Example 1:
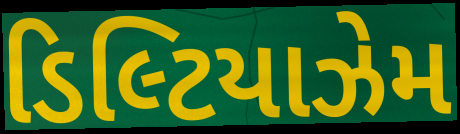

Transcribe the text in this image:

ડિલ્ટિયાઝેમ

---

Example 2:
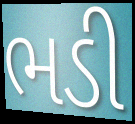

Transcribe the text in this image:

ભડી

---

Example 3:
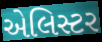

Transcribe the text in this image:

એલિસ્ટર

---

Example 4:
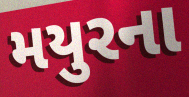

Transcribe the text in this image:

મયુરના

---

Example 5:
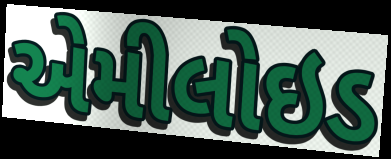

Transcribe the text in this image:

એમીલોઇડ